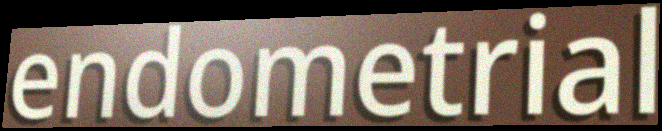
endometrial